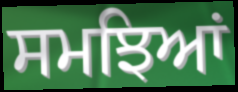
ਸਮਝਿਆਂ